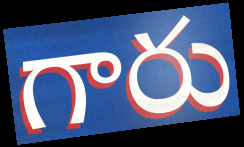
గారు